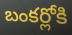
బంకర్లోకి